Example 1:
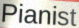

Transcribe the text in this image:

Pianist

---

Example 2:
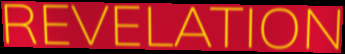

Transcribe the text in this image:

REVELATION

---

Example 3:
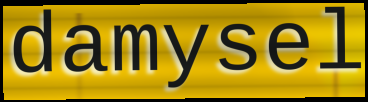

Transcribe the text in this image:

damysel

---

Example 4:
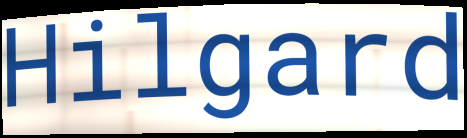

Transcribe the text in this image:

Hilgard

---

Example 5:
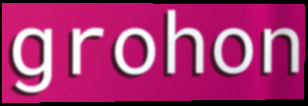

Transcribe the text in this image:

grohon